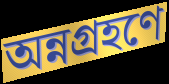
অন্নগ্রহণে